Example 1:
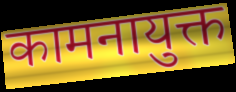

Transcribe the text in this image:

कामनायुक्त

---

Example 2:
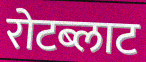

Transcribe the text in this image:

रोटब्लाट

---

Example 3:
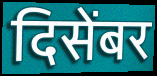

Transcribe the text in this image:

दिसेंबर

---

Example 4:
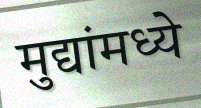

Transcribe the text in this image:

मुद्यांमध्ये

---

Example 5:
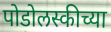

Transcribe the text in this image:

पोडोलस्कीच्या